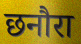
छनौरा